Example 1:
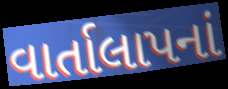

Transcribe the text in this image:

વાર્તાલાપનાં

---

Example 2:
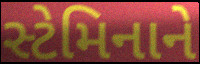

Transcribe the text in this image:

સ્ટેમિનાને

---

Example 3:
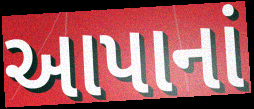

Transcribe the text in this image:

આપાનાં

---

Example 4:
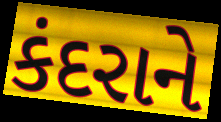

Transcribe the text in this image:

કંદરાને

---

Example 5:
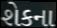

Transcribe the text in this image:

શેકના